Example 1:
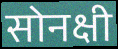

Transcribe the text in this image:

सोनक्षी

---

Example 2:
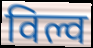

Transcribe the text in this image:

विल्व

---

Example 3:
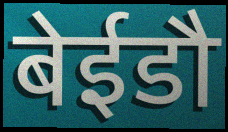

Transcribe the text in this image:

बेईडौ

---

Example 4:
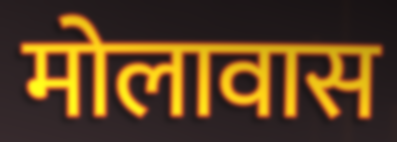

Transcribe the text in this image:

मोलावास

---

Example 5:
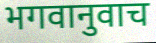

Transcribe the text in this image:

भगवानुवाच